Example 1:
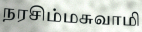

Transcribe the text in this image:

நரசிம்மசுவாமி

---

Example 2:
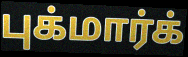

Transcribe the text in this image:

புக்மார்க்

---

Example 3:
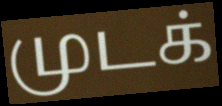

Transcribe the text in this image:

முடக்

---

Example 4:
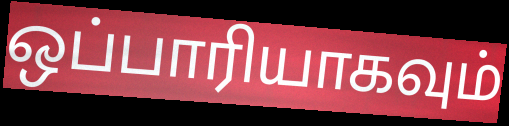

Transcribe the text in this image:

ஒப்பாரியாகவும்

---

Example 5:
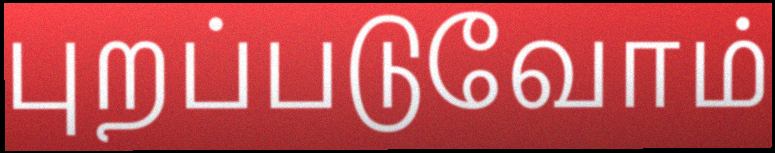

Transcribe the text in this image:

புறப்படுவோம்